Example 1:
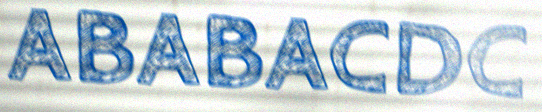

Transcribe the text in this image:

ABABACDC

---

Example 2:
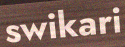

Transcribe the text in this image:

swikari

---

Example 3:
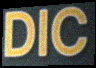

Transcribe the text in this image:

DIC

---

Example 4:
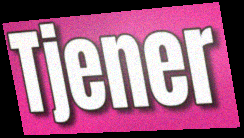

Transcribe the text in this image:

Tjener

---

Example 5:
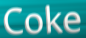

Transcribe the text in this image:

Coke